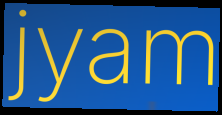
jyam